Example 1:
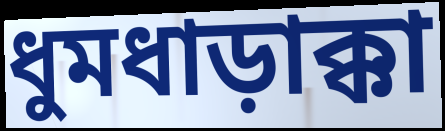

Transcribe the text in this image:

ধুমধাড়াক্কা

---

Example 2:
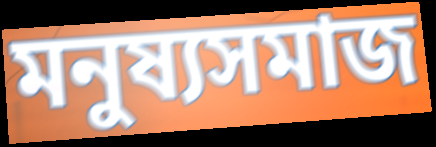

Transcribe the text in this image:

মনুষ্যসমাজ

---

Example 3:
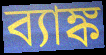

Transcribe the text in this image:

ব্যাঙ্ক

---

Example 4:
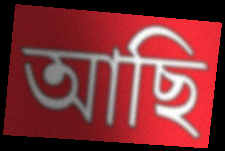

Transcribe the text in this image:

আছি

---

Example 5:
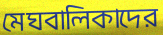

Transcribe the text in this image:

মেঘবালিকাদের